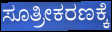
ಸೂತ್ರೀಕರಣಕ್ಕೆ